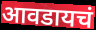
आवडायचं